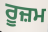
ਰੂਜ਼ਮ